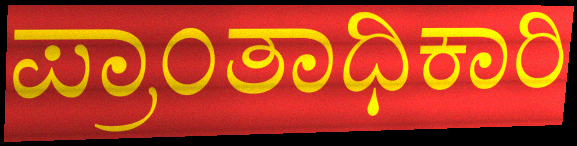
ಪ್ರಾಂತಾಧಿಕಾರಿ